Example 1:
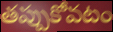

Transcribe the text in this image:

తప్పుకోవటం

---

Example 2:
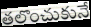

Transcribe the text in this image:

తలొంచుకునే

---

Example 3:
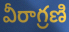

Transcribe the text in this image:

వీరాగ్రణి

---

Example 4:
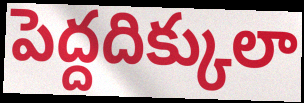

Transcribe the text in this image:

పెద్దదిక్కులా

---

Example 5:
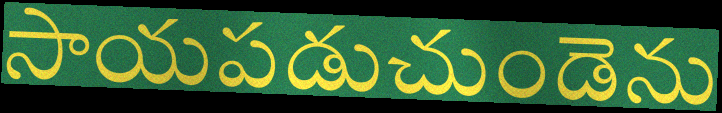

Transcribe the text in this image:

సాయపడుచుండెను